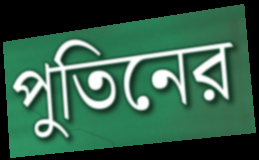
পুতিনের